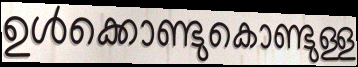
ഉൾക്കൊണ്ടുകൊണ്ടുള്ള